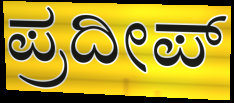
ಪ್ರದೀಪ್